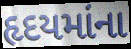
હૃદયમાંના